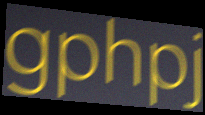
gphpj